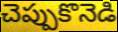
చెప్పుకొనెడి